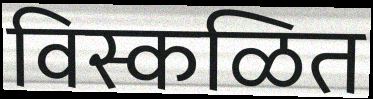
विस्कळित